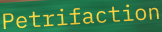
Petrifaction